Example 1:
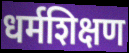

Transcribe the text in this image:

धर्मशिक्षण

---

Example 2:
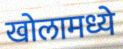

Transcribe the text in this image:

खोलामध्ये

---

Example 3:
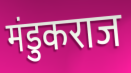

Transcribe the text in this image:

मंडुकराज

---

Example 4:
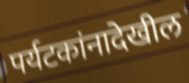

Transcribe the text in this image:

पर्यटकांनादेखील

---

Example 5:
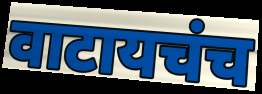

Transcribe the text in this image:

वाटायचंच